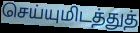
செய்யுமிடத்துத்